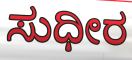
ಸುಧೀರ